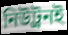
নিউট্রনই